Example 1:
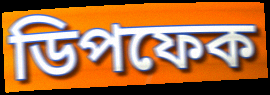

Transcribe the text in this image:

ডিপফেক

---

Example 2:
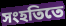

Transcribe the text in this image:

সংহতিতে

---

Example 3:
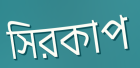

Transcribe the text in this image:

সিরকাপ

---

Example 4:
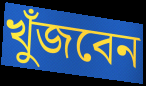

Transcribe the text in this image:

খুঁজবেন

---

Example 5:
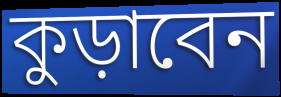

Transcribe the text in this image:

কুড়াবেন